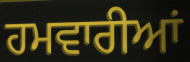
ਹਮਵਾਰੀਆਂ